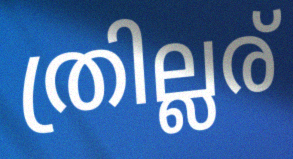
ത്രില്ലര്